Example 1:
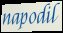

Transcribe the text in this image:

napodil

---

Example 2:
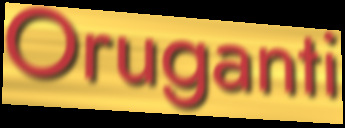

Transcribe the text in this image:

Oruganti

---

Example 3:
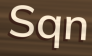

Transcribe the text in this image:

Sqn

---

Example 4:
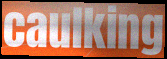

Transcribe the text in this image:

caulking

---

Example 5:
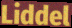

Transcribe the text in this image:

Liddel